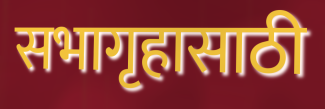
सभागृहासाठी